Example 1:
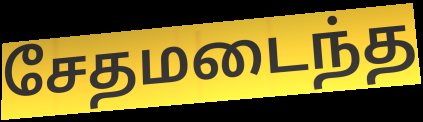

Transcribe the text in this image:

சேதமடைந்த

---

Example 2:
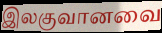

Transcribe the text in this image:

இலகுவானவை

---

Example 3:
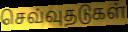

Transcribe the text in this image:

செவ்வுதடுகள்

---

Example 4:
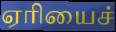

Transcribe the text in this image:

ஏரியைச்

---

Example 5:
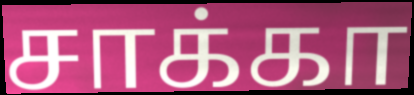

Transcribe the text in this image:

சாக்கா